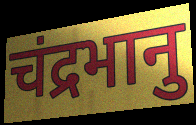
चंद्रभानु